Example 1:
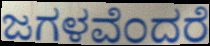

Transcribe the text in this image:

ಜಗಳವೆಂದರೆ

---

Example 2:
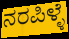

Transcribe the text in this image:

ನರಪಿಳ್ಳೆ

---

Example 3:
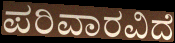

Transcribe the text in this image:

ಪರಿವಾರವಿದೆ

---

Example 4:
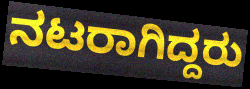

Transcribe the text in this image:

ನಟರಾಗಿದ್ದರು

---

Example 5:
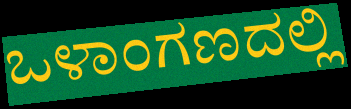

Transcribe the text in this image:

ಒಳಾಂಗಣದಲ್ಲಿ